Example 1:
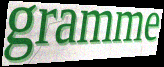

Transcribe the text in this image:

gramme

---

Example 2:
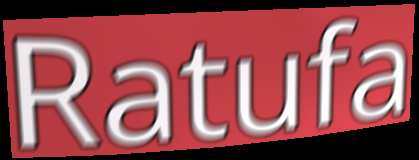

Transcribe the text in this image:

Ratufa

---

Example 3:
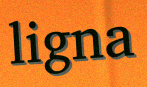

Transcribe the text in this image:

ligna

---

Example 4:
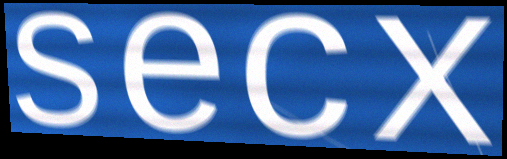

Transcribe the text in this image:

secx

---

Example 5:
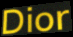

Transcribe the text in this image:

Dior